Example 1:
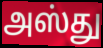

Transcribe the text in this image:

அஸ்து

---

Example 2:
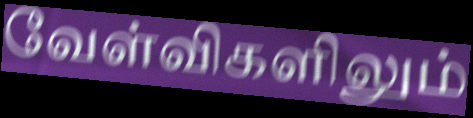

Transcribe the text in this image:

வேள்விகளிலும்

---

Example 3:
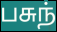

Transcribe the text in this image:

பசுந்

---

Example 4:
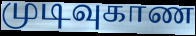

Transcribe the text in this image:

முடிவுகாண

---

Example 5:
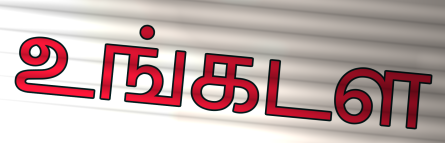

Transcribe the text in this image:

உங்கடள